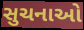
સુચનાઓ